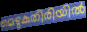
മെഴുകുതിരിയിൽ